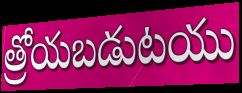
త్రోయబడుటయు